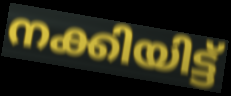
നക്കിയിട്ട്